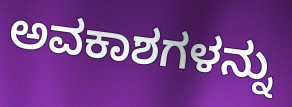
ಅವಕಾಶಗಳನ್ನು